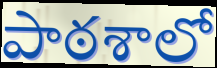
పాఠశాలో